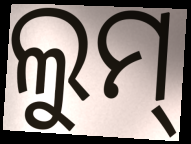
ଲୁମ୍